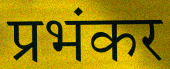
प्रभंकर